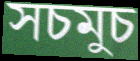
সচমুচ